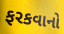
ફરકવાનો